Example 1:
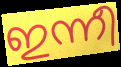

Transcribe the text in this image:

ഇന്നീ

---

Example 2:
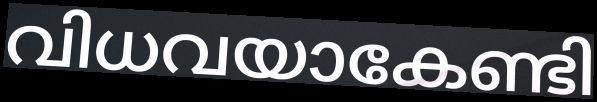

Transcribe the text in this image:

വിധവയാകേണ്ടി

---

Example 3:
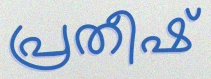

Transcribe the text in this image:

പ്രതീഷ്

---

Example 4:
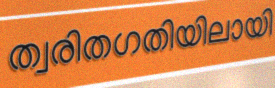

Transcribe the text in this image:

ത്വരിതഗതിയിലായി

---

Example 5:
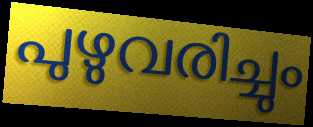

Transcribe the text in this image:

പുഴുവരിച്ചും